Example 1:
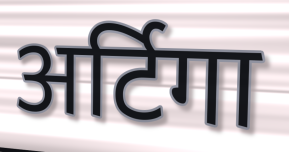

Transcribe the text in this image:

अर्टिगा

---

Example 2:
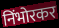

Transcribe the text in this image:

निंभोरकर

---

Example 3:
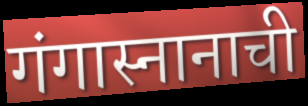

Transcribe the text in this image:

गंगास्नानाची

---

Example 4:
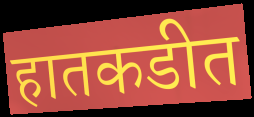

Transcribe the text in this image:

हातकडीत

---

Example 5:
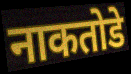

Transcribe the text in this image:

नाकतोडे